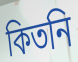
কিতনি